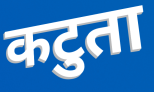
कटुता